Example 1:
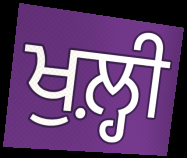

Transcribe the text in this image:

ਖੁਲ਼੍ਹੀ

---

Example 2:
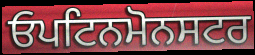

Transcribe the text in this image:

ਓਪਟਿਨਮੋਨਸਟਰ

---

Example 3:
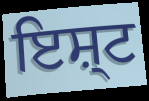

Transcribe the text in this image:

ਇਸ਼੍ਟ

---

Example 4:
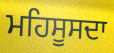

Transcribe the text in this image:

ਮਹਿਸੂਸਦਾ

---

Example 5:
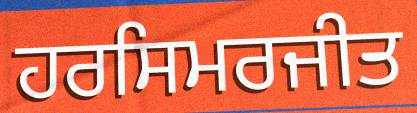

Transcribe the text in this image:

ਹਰਸਿਮਰਜੀਤ